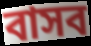
বাসব